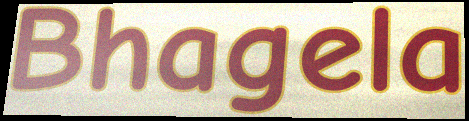
Bhagela